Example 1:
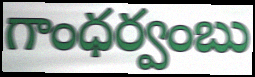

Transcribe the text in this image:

గాంధర్వంబు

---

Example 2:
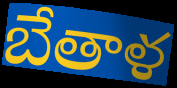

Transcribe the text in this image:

బేతాళ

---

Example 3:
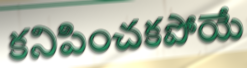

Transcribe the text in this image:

కనిపించకపోయే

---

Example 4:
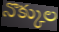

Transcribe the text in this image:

నొక్కుల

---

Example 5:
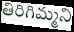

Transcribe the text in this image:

తిరిగిమ్మని